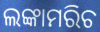
ଲଙ୍କାମରିଚ